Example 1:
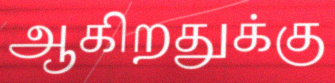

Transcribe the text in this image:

ஆகிறதுக்கு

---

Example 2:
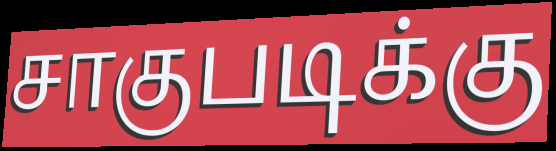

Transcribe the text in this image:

சாகுபடிக்கு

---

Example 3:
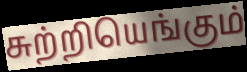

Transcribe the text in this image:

சுற்றியெங்கும்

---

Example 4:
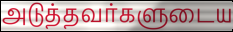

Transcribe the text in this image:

அடுத்தவர்களுடைய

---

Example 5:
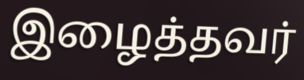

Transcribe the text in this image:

இழைத்தவர்